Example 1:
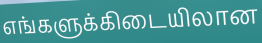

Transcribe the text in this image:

எங்களுக்கிடையிலான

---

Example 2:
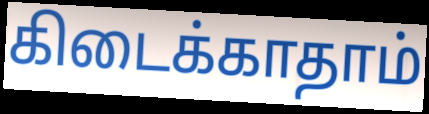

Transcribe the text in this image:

கிடைக்காதாம்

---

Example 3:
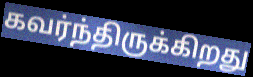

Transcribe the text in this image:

கவர்ந்திருக்கிறது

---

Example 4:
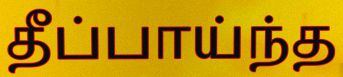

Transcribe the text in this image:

தீப்பாய்ந்த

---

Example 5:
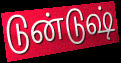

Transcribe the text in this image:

டுன்டுஷ்